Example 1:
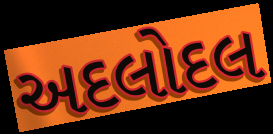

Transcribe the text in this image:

અદલોદલ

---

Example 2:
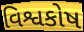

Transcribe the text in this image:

વિશ્વકોષ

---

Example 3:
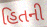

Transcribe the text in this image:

હિતની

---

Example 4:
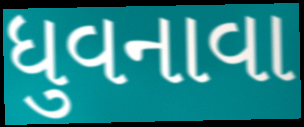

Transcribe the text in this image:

ધુવનાવા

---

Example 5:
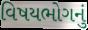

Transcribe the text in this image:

વિષયભોગનું